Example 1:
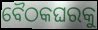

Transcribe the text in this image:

ବୈଠକଘରକୁ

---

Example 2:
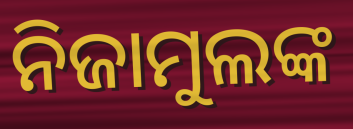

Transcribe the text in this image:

ନିଜାମୁଲଙ୍କ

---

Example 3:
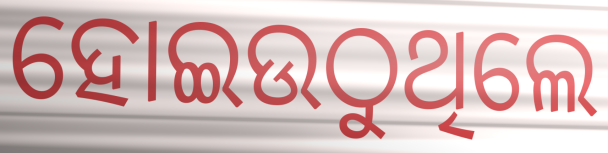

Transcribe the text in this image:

ହୋଇଉଠୁଥିଲେ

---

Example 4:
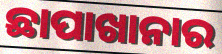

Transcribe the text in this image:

ଛାପାଖାନାର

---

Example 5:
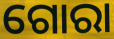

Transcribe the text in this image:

ଗୋରା